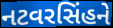
નટવરસિંહને